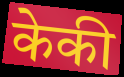
केकी